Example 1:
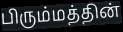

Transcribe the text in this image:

பிரும்மத்தின்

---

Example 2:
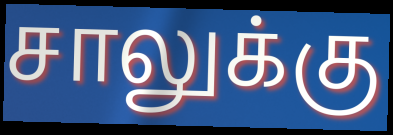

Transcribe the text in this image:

சாலுக்கு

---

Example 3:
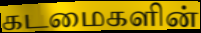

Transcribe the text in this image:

கடமைகளின்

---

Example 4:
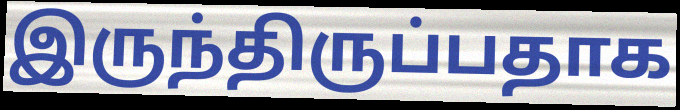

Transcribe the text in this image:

இருந்திருப்பதாக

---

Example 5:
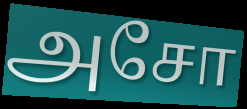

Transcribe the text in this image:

அசோ